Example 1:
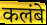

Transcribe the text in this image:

कलंबे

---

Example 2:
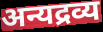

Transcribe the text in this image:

अन्यद्रव्य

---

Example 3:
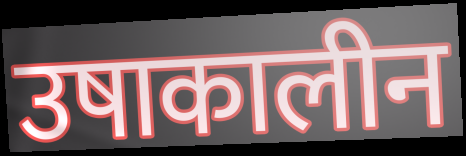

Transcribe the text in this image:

उषाकालीन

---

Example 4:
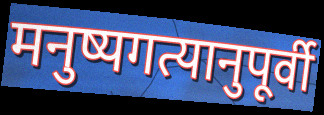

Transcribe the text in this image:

मनुष्यगत्यानुपूर्वी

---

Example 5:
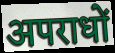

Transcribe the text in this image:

अपराधों